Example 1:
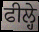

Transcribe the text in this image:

ਫੀਲ੍ਹੇ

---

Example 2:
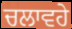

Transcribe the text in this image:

ਚਲਾਵਹੇ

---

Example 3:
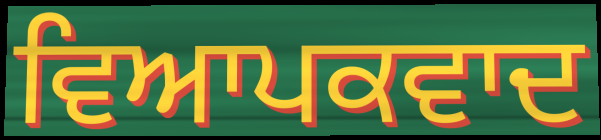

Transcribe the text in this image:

ਵਿਆਪਕਵਾਦ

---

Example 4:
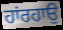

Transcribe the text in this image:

ਹਾਂਰਹਾਉ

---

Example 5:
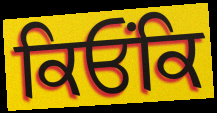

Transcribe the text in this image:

ਕਿਓਂਕਿ